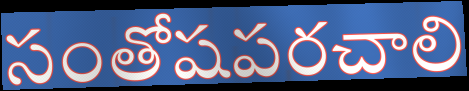
సంతోషపరచాలి